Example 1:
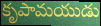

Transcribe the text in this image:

కృపామయుడు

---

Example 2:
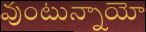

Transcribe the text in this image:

వుంటున్నాయో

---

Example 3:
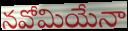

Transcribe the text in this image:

నవోమియేనా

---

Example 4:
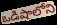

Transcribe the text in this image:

ఒడిషాలోని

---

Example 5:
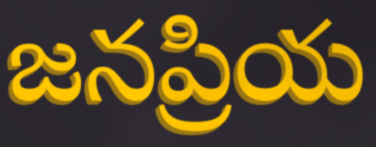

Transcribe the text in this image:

జనప్రియ